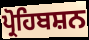
ਪ੍ਰੋਹਿਬਸ਼ਨ